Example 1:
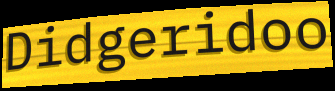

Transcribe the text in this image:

Didgeridoo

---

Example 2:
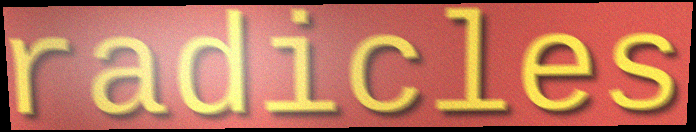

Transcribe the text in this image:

radicles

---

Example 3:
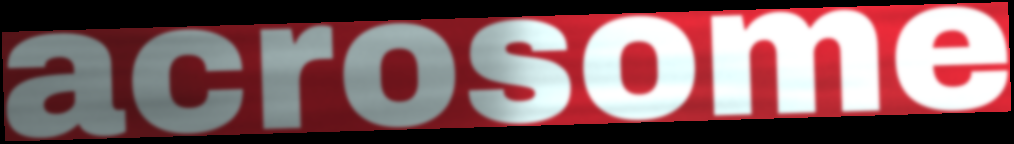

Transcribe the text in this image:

acrosome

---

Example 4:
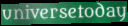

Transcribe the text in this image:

universetoday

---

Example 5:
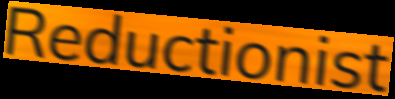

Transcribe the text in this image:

Reductionist